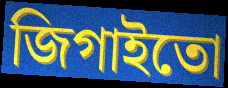
জিগাইতো